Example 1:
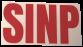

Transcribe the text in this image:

SINP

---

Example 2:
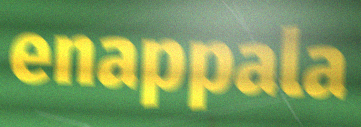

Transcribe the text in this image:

enappala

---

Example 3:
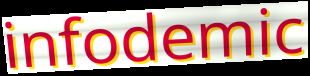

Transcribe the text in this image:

infodemic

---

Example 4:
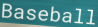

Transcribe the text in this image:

Baseball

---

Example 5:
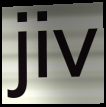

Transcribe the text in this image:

jiv